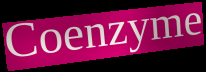
Coenzyme